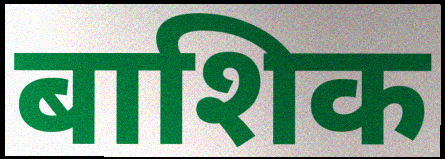
बाशिक